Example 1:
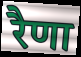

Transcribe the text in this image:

रैणा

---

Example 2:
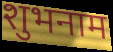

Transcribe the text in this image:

शुभनाम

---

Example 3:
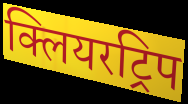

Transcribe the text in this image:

क्लियरट्रिप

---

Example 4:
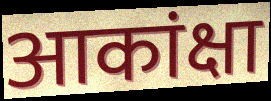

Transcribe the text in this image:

आकांक्षा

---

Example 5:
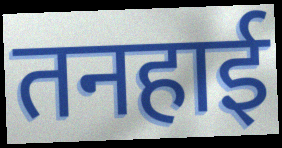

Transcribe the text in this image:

तनहाई